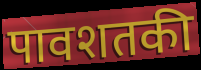
पावशतकी